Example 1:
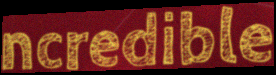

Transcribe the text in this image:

ncredible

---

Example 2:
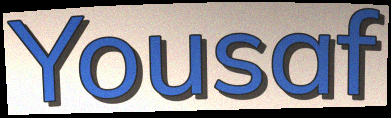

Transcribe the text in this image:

Yousaf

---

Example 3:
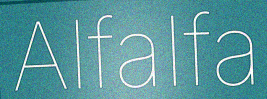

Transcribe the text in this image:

Alfalfa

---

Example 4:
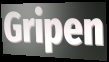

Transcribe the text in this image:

Gripen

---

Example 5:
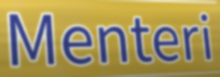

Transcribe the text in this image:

Menteri